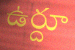
ఉర్దూ